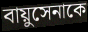
বায়ুসেনাকে